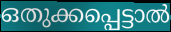
ഒതുക്കപ്പെട്ടാൽ